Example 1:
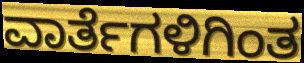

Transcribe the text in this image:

ವಾರ್ತೆಗಳಿಗಿಂತ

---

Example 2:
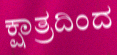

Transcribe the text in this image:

ಕ್ಷಾತ್ರದಿಂದ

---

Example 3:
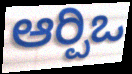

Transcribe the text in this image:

ಆರ್‍ಪಿಒ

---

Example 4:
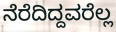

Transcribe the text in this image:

ನೆರೆದಿದ್ದವರೆಲ್ಲ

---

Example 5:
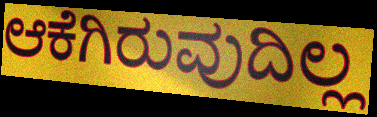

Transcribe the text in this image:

ಆಕೆಗಿರುವುದಿಲ್ಲ